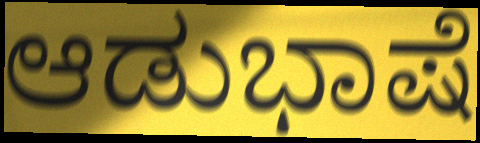
ಆಡುಭಾಷೆ